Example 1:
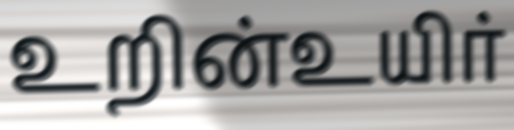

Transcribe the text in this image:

உறின்உயிர்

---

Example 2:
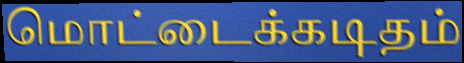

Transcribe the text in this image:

மொட்டைக்கடிதம்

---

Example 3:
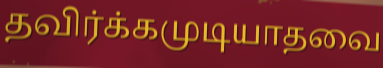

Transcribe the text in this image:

தவிர்க்கமுடியாதவை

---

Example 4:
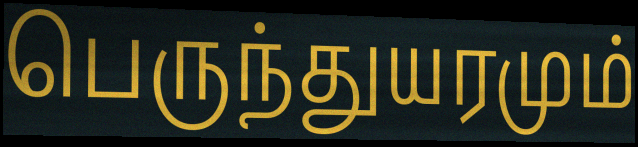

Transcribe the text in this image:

பெருந்துயரமும்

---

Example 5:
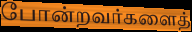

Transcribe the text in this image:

போன்றவர்களைத்